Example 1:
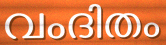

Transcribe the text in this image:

വംദിതം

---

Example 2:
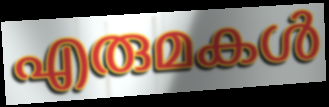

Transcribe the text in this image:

എരുമകൾ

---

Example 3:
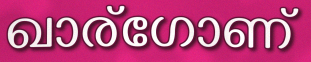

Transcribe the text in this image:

ഖാര്ഗോണ്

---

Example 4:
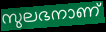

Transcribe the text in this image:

സുലഭനാണ്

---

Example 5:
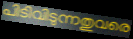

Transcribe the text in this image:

പിടിവിടുന്നതുവരെ